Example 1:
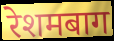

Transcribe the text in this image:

रेशमबाग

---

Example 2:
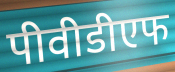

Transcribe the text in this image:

पीवीडीएफ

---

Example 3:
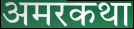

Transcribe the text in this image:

अमरकथा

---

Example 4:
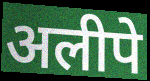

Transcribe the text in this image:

अलीपे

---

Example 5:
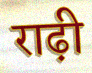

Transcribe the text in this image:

राढ़ी